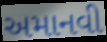
અમાનવી